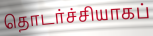
தொடர்ச்சியாகப்